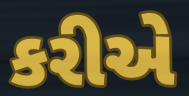
કરીએ